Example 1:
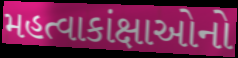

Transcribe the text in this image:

મહત્વાકાંક્ષાઓનો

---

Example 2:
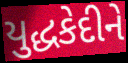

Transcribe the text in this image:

યુદ્ધકેદીને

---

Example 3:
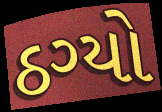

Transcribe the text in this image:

ઠગ્યો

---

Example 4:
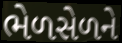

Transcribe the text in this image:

ભેળસેળને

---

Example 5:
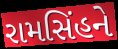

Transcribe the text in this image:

રામસિંહને